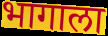
भागाला